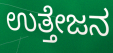
ಉತ್ತೇಜನ